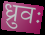
ध्रुवः